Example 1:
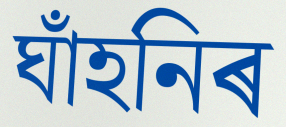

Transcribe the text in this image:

ঘাঁহনিৰ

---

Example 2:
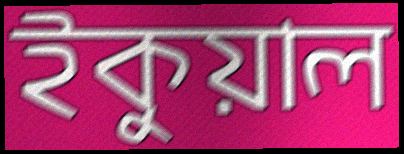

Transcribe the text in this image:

ইকুয়াল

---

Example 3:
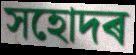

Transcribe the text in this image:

সহোদৰ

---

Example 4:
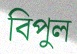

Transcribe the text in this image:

বিপুল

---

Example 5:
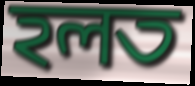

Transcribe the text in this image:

হলত